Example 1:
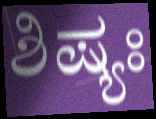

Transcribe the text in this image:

ಶಿಷ್ಯಃ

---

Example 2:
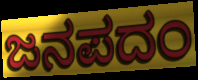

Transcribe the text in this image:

ಜನಪದಂ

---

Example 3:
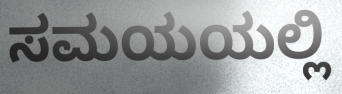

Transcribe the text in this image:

ಸಮಯಯಲ್ಲಿ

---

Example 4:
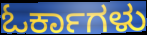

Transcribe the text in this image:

ಓರ್ಕಾಗಳು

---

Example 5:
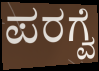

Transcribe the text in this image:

ಪರಗ್ವೆ